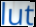
lut